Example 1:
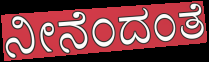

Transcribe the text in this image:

ನೀನೆಂದಂತೆ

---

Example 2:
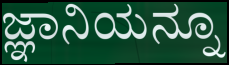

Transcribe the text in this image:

ಜ್ಞಾನಿಯನ್ನೂ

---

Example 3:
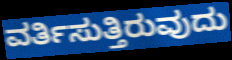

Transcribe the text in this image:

ವರ್ತಿಸುತ್ತಿರುವುದು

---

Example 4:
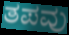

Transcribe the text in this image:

ತಪವು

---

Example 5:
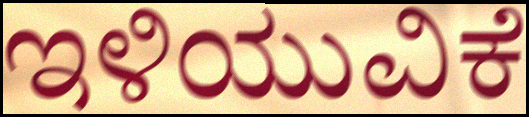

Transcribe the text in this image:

ಇಳಿಯುವಿಕೆ